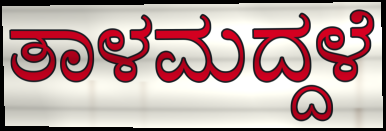
ತಾಳಮದ್ದಳೆ